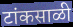
टांकसाळी